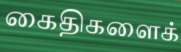
கைதிகளைக்